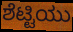
ಶೆಟ್ಟಿಯು